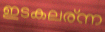
ഇടകലര്ന്ന